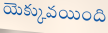
యెక్కువయింది